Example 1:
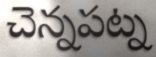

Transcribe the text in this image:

చెన్నపట్న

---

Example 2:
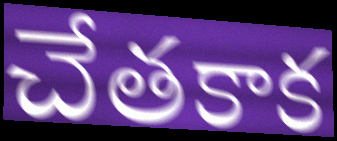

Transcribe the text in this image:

చేతకాక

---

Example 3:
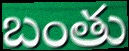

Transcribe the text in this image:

బంతు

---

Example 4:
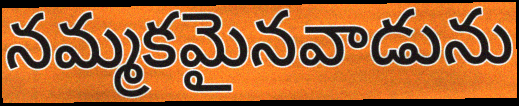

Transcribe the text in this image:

నమ్మకమైనవాడును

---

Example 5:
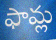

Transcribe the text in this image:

ఫామ్ల